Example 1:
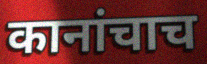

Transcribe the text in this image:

कानांचाच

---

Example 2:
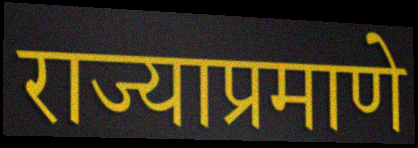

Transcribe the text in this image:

राज्याप्रमाणे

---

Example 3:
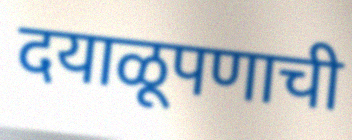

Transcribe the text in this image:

दयाळूपणाची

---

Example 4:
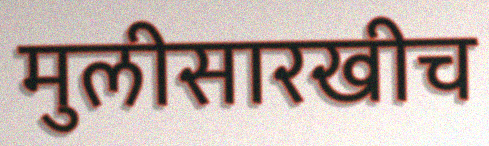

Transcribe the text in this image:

मुलीसारखीच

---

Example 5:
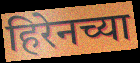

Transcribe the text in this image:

हिरेनच्या